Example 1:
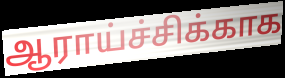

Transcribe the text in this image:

ஆராய்ச்சிக்காக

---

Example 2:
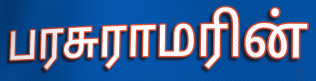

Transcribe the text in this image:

பரசுராமரின்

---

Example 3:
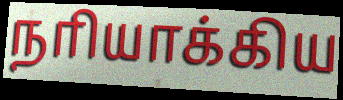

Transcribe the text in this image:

நரியாக்கிய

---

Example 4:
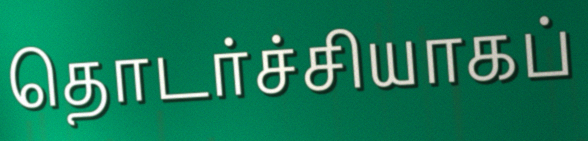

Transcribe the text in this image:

தொடர்ச்சியாகப்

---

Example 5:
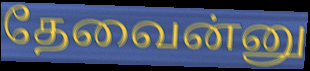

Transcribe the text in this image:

தேவைன்னு